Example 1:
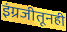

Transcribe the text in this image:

इंग्रजीतूनही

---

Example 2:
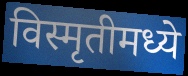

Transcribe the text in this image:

विस्मृतीमध्ये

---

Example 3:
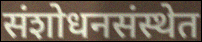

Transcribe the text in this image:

संशोधनसंस्थेत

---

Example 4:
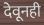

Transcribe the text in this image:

देवूनही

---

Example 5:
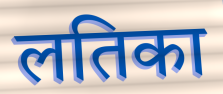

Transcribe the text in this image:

लतिका